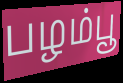
பழம்பூ